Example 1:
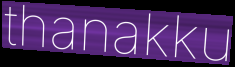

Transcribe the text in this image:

thanakku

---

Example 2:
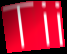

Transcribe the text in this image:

Tii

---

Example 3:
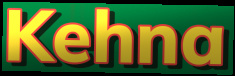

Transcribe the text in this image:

Kehna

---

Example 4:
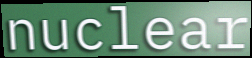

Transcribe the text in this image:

nuclear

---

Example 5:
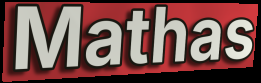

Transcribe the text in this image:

Mathas